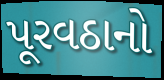
પૂરવઠાનો